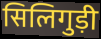
सिलिगुड़ी